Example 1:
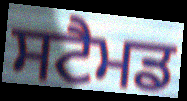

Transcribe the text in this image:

ਸਟੈਮਡ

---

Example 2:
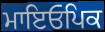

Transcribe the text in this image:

ਮਾਇਓਪਿਕ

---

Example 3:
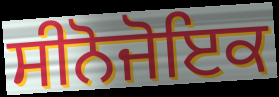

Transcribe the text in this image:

ਸੀਨੋਜੋਇਕ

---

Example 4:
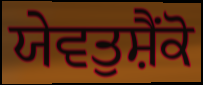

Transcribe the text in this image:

ਯੇਵਤੁਸ਼ੈਂਕੋ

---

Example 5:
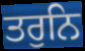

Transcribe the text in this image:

ਤਰੁਨਿ